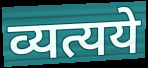
व्यत्यये